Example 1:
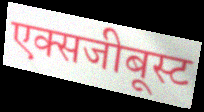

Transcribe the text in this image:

एक्सजीबूस्ट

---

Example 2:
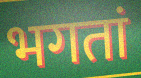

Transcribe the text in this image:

भगतां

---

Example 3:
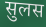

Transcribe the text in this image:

सुलस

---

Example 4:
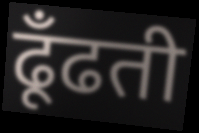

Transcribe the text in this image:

ढूँढती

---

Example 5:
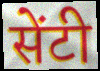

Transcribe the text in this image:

सेंटी